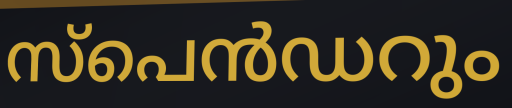
സ്പെൻഡറും